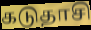
கடுதாசி